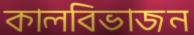
কালবিভাজন